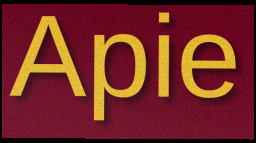
Apie